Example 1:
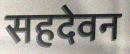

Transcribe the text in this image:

सहदेवन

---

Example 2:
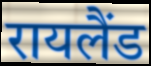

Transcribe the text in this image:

रायलैंड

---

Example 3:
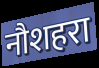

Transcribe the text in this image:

नौशहरा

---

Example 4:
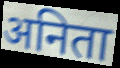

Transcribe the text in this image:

अनिता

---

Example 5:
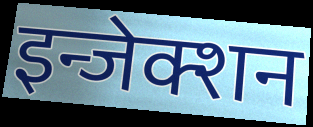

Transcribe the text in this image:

इन्जेक्शन